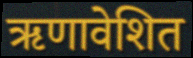
ऋणावेशित